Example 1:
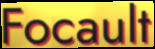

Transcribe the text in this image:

Focault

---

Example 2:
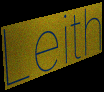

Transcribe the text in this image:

Leith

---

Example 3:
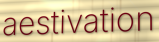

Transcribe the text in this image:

aestivation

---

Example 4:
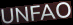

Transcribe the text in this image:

UNFAO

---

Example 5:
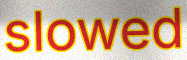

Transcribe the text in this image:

slowed